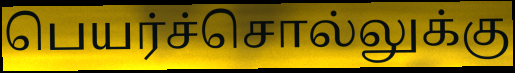
பெயர்ச்சொல்லுக்கு